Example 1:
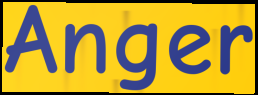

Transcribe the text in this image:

Anger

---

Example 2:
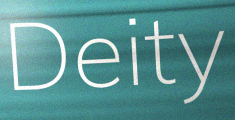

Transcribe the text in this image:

Deity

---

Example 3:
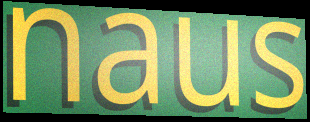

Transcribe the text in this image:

naus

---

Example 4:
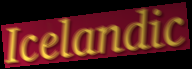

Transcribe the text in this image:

Icelandic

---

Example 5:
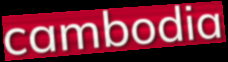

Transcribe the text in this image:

cambodia